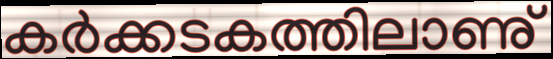
കർക്കടകത്തിലാണു്